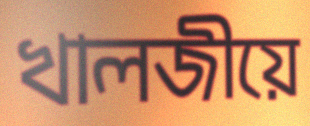
খালজীয়ে